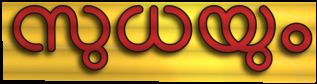
സുധയും